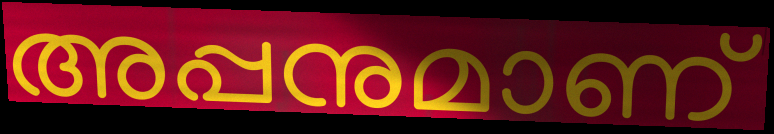
അപ്പനുമാണ്